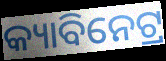
କ୍ୟାବିନେଟ୍ର